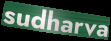
sudharva